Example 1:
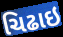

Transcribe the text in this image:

ચિઢાઇ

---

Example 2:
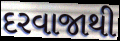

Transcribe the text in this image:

દરવાજાથી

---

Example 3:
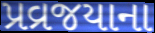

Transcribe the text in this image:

પ્રવ્રજયાના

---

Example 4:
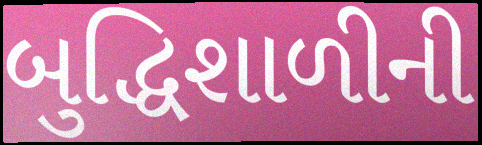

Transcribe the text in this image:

બુદ્ધિશાળીની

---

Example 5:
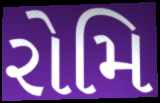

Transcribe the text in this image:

રોમિ